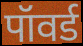
पॉवर्ड